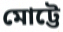
মোট্টে